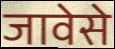
जावेसे